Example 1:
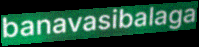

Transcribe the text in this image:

banavasibalaga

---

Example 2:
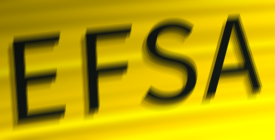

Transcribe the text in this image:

EFSA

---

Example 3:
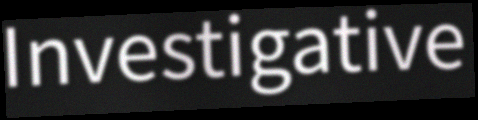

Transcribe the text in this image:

Investigative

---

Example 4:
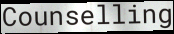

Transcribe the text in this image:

Counselling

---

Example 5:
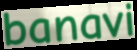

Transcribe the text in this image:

banavi